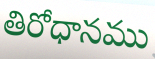
తిరోధానము